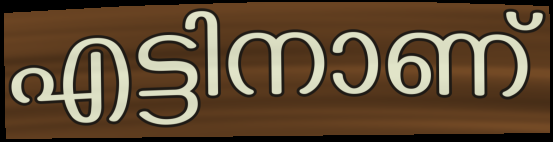
എട്ടിനാണ്